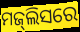
ମଜ୍‌ଲିସରେ